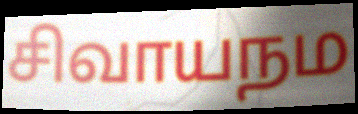
சிவாயநம